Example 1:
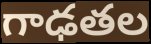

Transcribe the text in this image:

గాఢతల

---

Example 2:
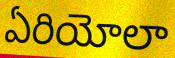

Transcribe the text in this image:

ఏరియోలా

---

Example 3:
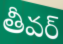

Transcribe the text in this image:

తీవర్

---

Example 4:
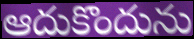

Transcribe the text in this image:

ఆదుకొందును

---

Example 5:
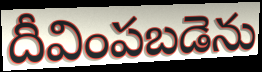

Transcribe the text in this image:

దీవింపబడెను